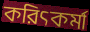
করিৎকর্মা